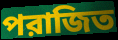
পরাজিত